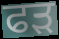
ਫੜ